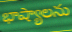
భాష్యాలను